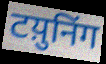
टय़ुनिंग